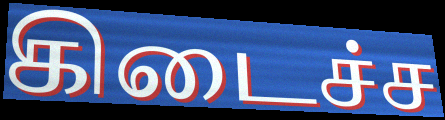
கிடைச்ச